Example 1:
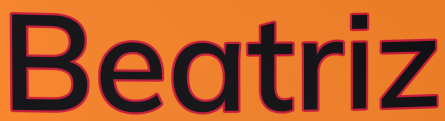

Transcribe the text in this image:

Beatriz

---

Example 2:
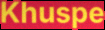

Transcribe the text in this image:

Khuspe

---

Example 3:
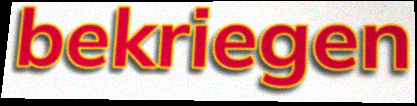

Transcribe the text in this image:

bekriegen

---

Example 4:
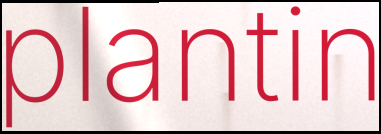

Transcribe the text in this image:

plantin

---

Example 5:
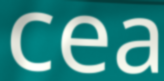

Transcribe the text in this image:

cea